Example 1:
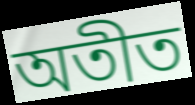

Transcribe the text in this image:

অতীত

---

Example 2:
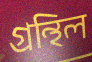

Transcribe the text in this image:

গ্ৰন্থিল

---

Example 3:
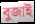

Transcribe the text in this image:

বুজাই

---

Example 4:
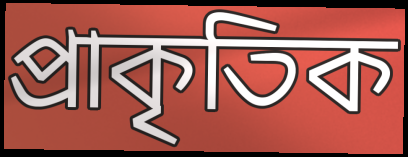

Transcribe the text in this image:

প্ৰাকৃতিক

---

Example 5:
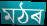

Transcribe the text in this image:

মঠৰ